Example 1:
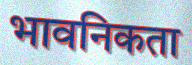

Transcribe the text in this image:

भावनिकता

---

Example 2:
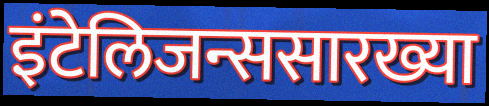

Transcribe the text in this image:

इंटेलिजन्ससारख्या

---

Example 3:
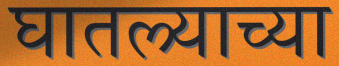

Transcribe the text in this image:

घातल्याच्या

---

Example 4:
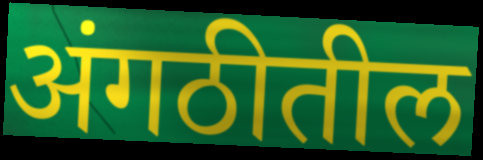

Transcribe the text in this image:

अंगठीतील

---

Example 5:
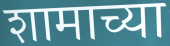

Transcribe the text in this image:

शामाच्या